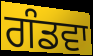
ਗੰਡਵਾ